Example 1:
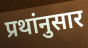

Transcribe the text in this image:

प्रथांनुसार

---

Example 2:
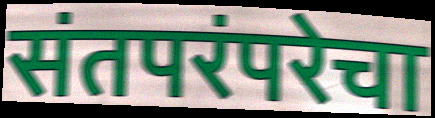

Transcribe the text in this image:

संतपरंपरेचा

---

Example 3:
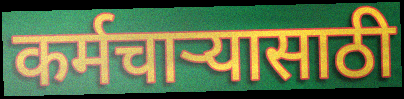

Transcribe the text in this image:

कर्मचाऱ्यासाठी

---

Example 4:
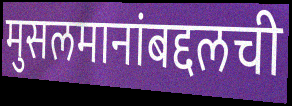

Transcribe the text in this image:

मुसलमानांबद्दलची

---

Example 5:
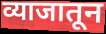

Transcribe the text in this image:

व्याजातून